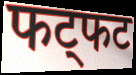
फट्फट